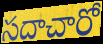
సదాచారో